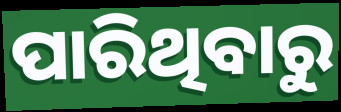
ପାରିଥିବାରୁ